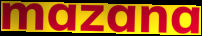
mazana